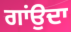
ਗਾਂਉਦਾ